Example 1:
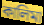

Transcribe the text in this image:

কালিমা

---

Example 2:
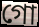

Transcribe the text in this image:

গো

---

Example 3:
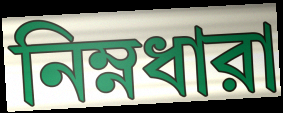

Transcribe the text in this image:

নিম্নধারা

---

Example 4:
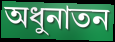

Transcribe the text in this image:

অধুনাতন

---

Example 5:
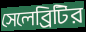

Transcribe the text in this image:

সেলেব্রিটির